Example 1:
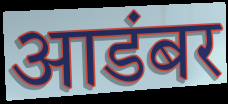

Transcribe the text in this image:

आडंबर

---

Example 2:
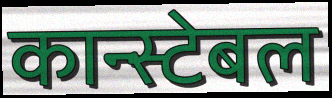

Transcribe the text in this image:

कान्स्टेबल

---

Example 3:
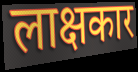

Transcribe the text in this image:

लाक्षकार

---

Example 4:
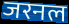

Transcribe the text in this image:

जरनल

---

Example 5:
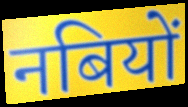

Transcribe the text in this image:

नबियों